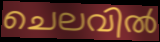
ചെലവിൽ